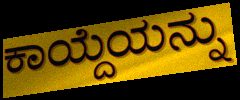
ಕಾಯ್ದೆಯನ್ನು